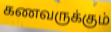
கணவருக்கும்